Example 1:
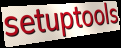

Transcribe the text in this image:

setuptools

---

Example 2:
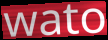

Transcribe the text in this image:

wato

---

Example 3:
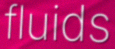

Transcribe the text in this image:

fluids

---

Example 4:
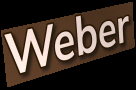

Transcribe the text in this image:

Weber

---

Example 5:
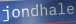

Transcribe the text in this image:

jondhale